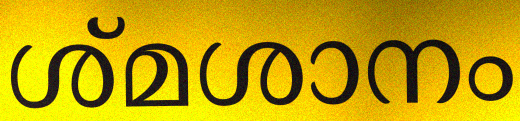
ശ്മശാനം